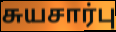
சுயசார்பு